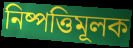
নিষ্পত্তিমূলক